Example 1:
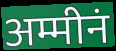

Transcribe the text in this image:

अम्मीनं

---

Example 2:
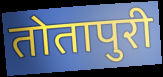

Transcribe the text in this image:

तोतापुरी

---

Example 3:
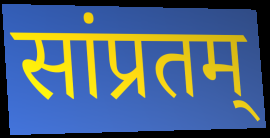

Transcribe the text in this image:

सांप्रतम्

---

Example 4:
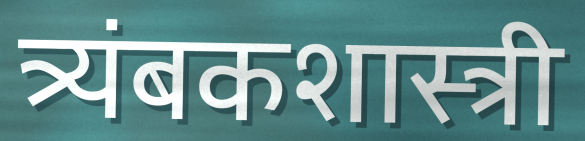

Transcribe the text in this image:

त्र्यंबकशास्त्री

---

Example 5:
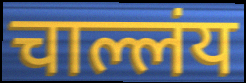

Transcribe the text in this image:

चाल्लंय